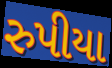
રુપીયા